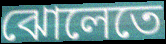
ঝোলেতে